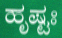
ಹೃಷ್ಟಃ